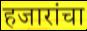
हजारांचा